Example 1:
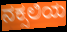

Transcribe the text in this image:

ನಕ್ಸಲಿಯ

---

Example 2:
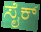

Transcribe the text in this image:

ಸೈಕ್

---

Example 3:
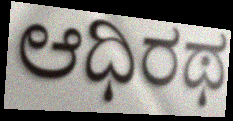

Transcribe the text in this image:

ಆಧಿರಥ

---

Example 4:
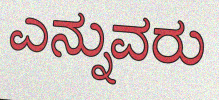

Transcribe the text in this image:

ಎನ್ನುವರು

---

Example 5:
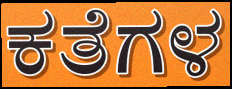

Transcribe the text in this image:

ಕತೆಗಳ